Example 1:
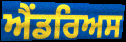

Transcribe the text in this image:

ਐਂਡਰਿਅਸ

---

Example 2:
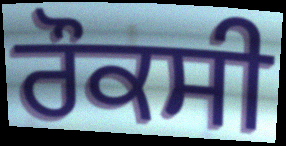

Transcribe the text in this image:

ਰੌਕਸੀ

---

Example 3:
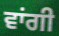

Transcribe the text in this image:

ਵਾਂਗੀ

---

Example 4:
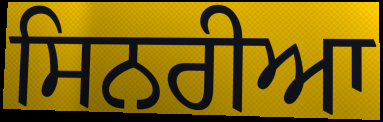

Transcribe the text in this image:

ਸਿਨਰੀਆ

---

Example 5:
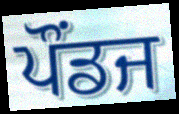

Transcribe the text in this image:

ਪੌਂਡਜ